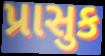
પ્રાસુક